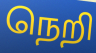
நெறி